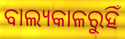
ବାଲ୍ୟକାଳରୁହିଁ